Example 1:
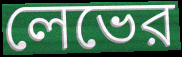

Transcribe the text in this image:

লেভের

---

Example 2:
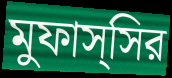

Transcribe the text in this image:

মুফাস্সির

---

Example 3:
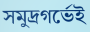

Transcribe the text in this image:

সমুদ্রগর্ভেই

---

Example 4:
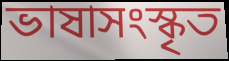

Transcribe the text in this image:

ভাষাসংস্কৃত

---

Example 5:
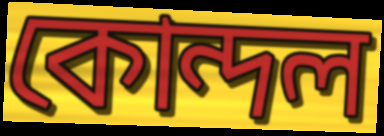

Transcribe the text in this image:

কোন্দল